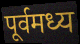
पूर्वमध्य